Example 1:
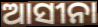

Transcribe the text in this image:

ଆସୀନା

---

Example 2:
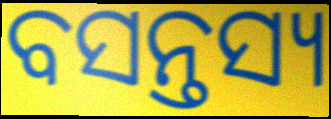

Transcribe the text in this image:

ବସନ୍ତସ୍ୟ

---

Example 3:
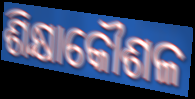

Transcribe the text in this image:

ଶିକ୍ଷାକୌଶଳ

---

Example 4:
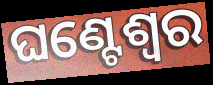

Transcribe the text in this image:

ଘଣ୍ଟେଶ୍ୱର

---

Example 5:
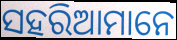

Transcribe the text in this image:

ସହରିଆମାନେ